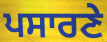
ਪਸਾਰਣੇ